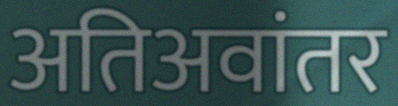
अतिअवांतर